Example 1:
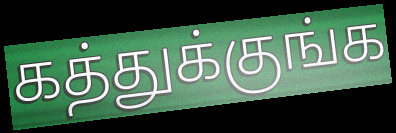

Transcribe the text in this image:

கத்துக்குங்க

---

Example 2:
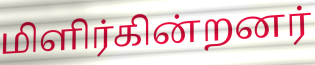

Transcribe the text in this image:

மிளிர்கின்றனர்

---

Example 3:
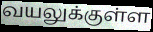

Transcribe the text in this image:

வயலுக்குள்ள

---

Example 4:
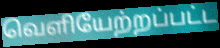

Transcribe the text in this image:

வெளியேற்றப்பட்ட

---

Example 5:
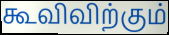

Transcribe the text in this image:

கூவிவிற்கும்